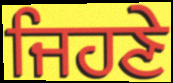
ਜਿਹਣੇ